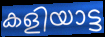
കളിയാട്ട